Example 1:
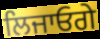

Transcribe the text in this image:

ਲਿਜਾਓਗੇ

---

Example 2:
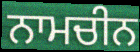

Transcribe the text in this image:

ਨਾਮਚੀਨ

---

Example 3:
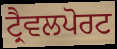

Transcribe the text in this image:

ਟ੍ਰੈਵਲਪੋਰਟ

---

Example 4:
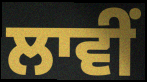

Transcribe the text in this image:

ਲਾਵੀਂ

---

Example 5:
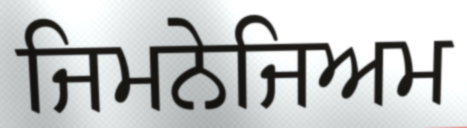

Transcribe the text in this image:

ਜਿਮਨੇਜਿਅਮ